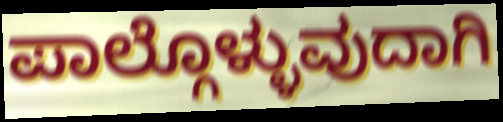
ಪಾಲ್ಗೊಳ್ಳುವುದಾಗಿ